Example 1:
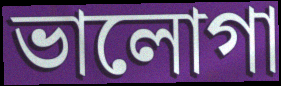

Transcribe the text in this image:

ভালোগা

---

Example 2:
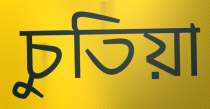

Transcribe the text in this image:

চুতিয়া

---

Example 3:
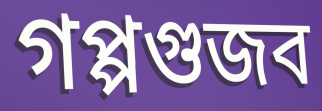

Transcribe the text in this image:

গপ্পগুজব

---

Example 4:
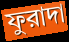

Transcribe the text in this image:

ফুরাদা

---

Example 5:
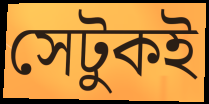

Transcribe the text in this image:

সেটুকই